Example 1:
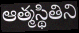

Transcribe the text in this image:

ఆత్మస్థితిని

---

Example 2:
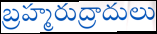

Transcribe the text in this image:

బ్రహ్మరుద్రాదులు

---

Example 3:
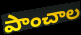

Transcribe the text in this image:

పాంచాల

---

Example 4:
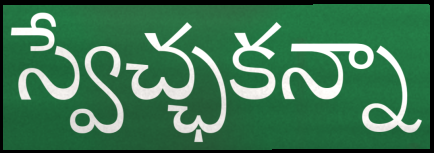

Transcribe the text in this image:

స్వేచ్ఛకన్నా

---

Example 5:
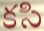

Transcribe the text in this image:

కసి